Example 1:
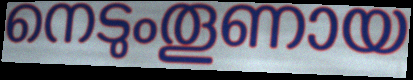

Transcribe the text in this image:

നെടുംതൂണായ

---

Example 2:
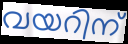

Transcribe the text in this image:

വയറിന്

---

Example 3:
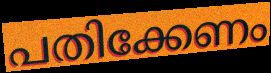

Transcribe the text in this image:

പതിക്കേണം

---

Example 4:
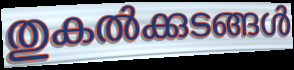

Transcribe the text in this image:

തുകൽക്കുടങ്ങൾ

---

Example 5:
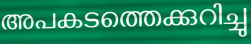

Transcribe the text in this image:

അപകടത്തെക്കുറിച്ചു